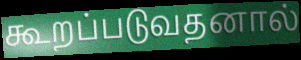
கூறப்படுவதனால்